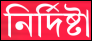
নির্দিষ্টা